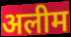
अलीम